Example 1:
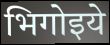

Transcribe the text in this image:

भिगोइये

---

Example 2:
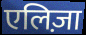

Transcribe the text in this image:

एलिज़ा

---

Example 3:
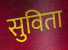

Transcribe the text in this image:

सुविता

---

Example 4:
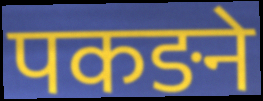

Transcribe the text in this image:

पकङने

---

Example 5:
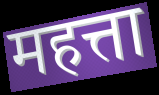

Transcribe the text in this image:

महत्ता